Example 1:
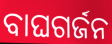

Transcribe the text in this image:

ବାଘଗର୍ଜନ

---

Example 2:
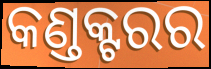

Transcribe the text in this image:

କଣ୍ଡକ୍ଟରର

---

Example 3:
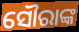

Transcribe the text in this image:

ସୌରାଙ୍କ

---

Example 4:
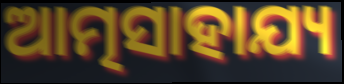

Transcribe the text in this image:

ଆତ୍ମସାହାଯ୍ୟ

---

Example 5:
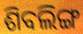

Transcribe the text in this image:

ଶିବଲିଙ୍ଗ